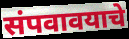
संपवावयाचे